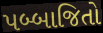
પબ્બાજિતો